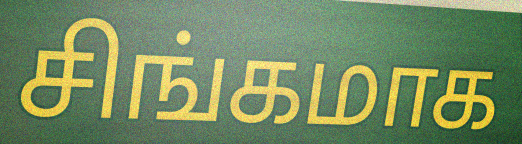
சிங்கமாக